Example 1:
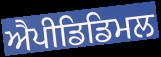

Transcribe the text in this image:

ਐਪੀਡਿਡਿਮਲ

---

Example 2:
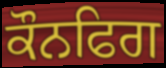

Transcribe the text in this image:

ਕੌਨਫਿਗ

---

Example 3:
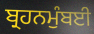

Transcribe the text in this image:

ਬ੍ਰਹਨਮੁੰਬਈ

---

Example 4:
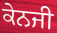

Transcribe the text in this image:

ਕੇਨਜੀ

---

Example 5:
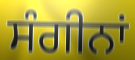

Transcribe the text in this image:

ਸੰਗੀਨਾਂ